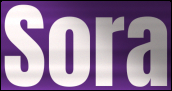
Sora